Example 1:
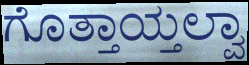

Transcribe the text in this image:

ಗೊತ್ತಾಯ್ತಲ್ವಾ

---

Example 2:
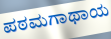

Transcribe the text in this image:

ಪಠಮಗಾಥಾಯ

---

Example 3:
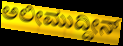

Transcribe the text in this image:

ಅಲೀಮುದ್ದೀನ್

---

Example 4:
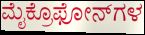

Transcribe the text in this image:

ಮೈಕ್ರೊಫೋನ್‌ಗಳ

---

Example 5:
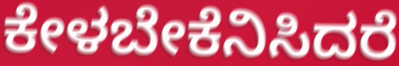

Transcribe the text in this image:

ಕೇಳಬೇಕೆನಿಸಿದರೆ